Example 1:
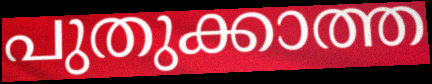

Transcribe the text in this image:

പുതുക്കാത്ത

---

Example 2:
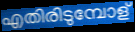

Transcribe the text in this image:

എതിരിടുമ്പോള്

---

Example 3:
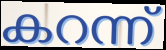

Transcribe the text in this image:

കറന്ന്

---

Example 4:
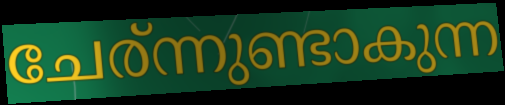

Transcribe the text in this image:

ചേര്ന്നുണ്ടാകുന്ന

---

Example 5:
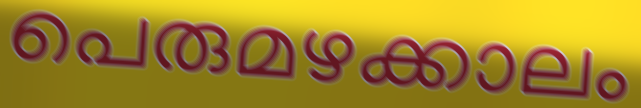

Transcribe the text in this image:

പെരുമഴക്കാലം